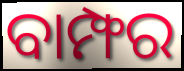
ବାମ୍ଫର